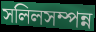
সলিলসম্পন্ন